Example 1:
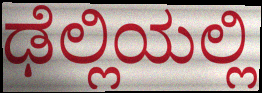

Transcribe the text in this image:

ಢೆಲ್ಲಿಯಲ್ಲಿ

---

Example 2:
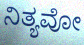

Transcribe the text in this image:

ನಿತ್ಯವೋ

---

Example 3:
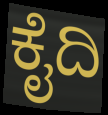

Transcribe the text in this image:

ಕೈದಿ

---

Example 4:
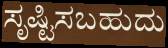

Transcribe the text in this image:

ಸೃಷ್ಟಿಸಬಹುದು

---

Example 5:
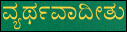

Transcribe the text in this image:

ವ್ಯರ್ಥವಾದೀತು